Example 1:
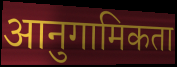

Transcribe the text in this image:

आनुगामिकता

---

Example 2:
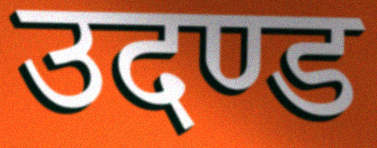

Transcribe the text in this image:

उदण्ड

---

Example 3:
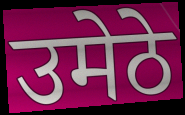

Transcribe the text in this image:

उमेठे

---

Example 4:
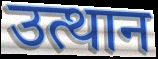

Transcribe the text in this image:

उत्थान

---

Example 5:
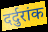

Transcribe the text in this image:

दर्दुरांक